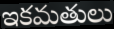
ఇకమతులు